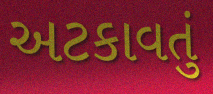
અટકાવતું